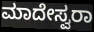
ಮಾದೇಸ್ವರಾ